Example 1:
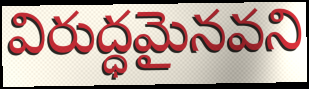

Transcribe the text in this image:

విరుద్ధమైనవని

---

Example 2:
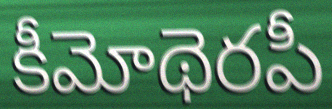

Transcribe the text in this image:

కీమోథెరపీ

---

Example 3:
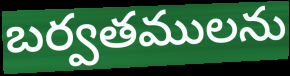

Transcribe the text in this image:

బర్వతములను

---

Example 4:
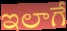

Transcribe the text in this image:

ఇలాగే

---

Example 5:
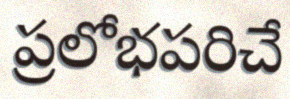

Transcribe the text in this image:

ప్రలోభపరిచే